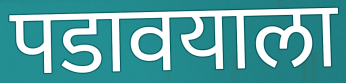
पडावयाला